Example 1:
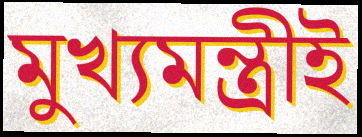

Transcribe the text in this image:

মুখ্যমন্ত্রীই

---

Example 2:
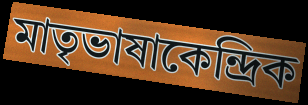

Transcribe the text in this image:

মাতৃভাষাকেন্দ্রিক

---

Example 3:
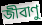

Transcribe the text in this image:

জীবাণু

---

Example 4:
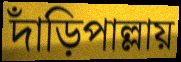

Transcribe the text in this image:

দাঁড়িপাল্লায়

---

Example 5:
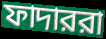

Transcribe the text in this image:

ফাদাররা